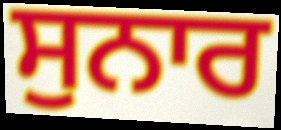
ਸੁਨਾਰ